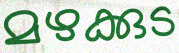
മഴക്കുട